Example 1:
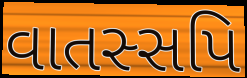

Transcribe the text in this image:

વાતસ્સપિ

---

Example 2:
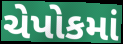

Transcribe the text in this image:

ચેપોકમાં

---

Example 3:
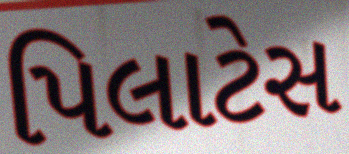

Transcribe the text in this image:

પિલાટેસ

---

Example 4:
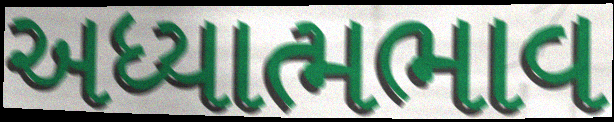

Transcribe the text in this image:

અધ્યાત્મભાવ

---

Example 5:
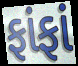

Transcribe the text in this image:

ફાંફાં